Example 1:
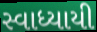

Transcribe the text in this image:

સ્વાધ્યાયી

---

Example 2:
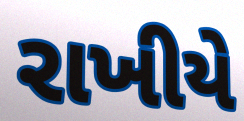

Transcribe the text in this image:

રાખીયે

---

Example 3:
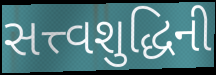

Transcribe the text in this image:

સત્ત્વશુદ્ધિની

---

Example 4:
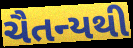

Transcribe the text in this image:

ચૈતન્યથી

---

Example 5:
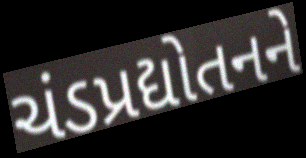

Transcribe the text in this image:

ચંડપ્રદ્યોતનને